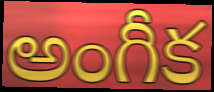
అంగీక